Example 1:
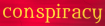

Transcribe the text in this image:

conspiracy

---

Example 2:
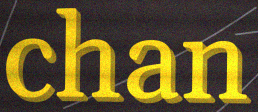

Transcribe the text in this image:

chan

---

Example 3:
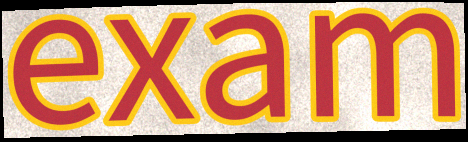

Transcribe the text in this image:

exam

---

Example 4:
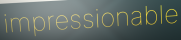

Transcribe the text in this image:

impressionable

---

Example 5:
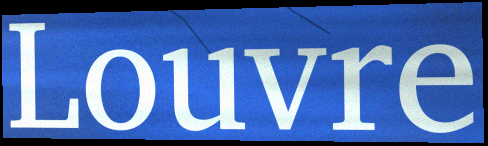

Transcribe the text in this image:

Louvre